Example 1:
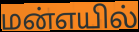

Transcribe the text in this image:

மன்எயில்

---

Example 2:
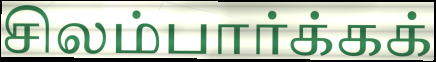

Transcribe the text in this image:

சிலம்பார்க்கக்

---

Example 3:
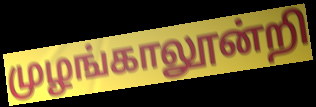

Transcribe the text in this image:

முழங்காலூன்றி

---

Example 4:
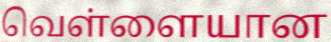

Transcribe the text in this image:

வெள்ளையான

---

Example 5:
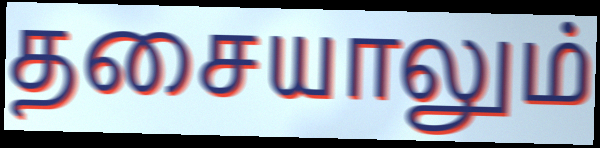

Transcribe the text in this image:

தசையாலும்